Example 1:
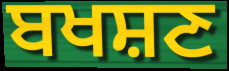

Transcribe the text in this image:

ਬਖਸ਼ਣ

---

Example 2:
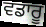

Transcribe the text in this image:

ਵਡਾਰੂ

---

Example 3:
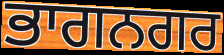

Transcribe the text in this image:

ਭਾਗਨਗਰ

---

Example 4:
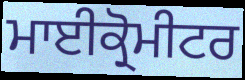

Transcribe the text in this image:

ਮਾਈਕ੍ਰੋਮੀਟਰ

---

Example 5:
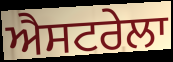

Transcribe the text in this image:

ਐਸਟਰੇਲਾ